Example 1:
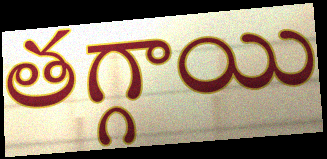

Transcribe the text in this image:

తగ్గాయి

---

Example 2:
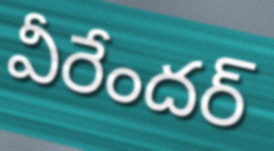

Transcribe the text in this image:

వీరేందర్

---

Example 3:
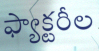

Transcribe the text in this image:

ఫ్యాక్టరీల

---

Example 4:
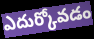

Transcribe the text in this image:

ఎదుర్కోవడం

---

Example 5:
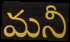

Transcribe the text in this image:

మనీ